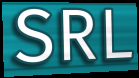
SRL